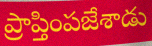
ప్రాప్తింపజేశాడు